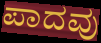
ಪಾದವು